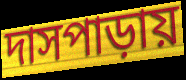
দাসপাড়ায়